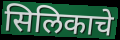
सिलिकाचे